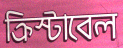
ক্রিস্টাবেল